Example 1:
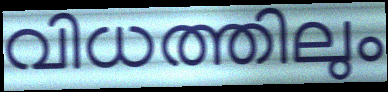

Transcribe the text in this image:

വിധത്തിലും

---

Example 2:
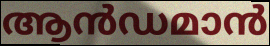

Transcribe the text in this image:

ആൻഡമാൻ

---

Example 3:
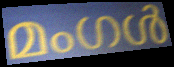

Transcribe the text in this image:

മംഗൾ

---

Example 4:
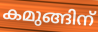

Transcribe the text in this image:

കമുങ്ങിന്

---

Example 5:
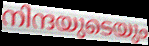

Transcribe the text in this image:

നിന്ദയുടെയും